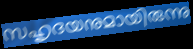
സഹൃദയനുമായിരുന്നു